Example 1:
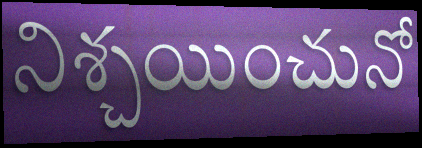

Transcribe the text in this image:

నిశ్చయించునో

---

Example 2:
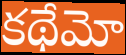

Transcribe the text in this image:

కథేమో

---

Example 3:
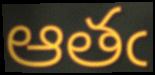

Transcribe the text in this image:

ఆతఁ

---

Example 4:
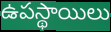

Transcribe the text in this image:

ఉపస్థాయిలు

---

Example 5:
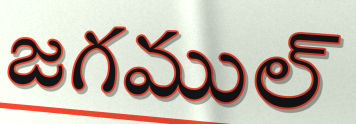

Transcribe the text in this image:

జగముల్